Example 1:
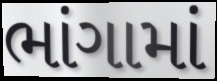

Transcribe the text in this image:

ભાંગામાં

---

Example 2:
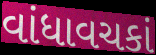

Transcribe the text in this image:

વાંધાવચકાં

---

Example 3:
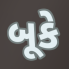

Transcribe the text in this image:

બૂકે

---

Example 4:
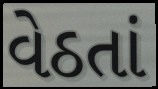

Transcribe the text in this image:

વેઠતાં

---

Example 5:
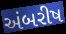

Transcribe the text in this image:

અંબરીષ